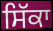
ਸਿੱਕਾ